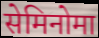
सेमिनोमा